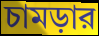
চামড়ার